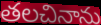
తలచినాను